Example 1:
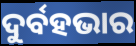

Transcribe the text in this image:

ଦୁର୍ବହଭାର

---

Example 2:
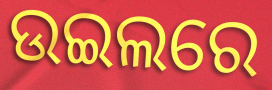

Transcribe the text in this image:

ଉଇଲରେ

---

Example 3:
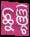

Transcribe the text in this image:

ଛୁଞ୍ଚି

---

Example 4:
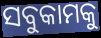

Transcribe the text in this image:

ସବୁକାମକୁ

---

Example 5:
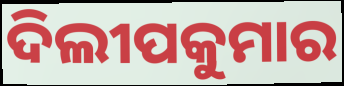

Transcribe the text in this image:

ଦିଲୀପକୁମାର